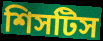
শিসটিস